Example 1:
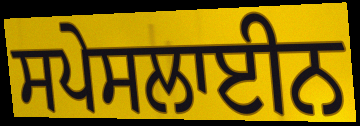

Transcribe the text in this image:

ਸਪੇਸਲਾਈਨ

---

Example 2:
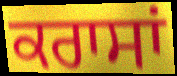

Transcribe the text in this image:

ਕਰਾਸਾਂ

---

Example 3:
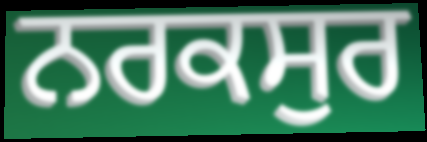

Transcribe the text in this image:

ਨਰਕਸੁਰ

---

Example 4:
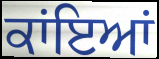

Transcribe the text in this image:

ਕਾਂਇਆਂ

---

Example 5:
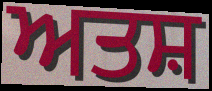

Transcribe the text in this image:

ਅਤਸ਼